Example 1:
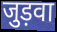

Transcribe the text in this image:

जुड़वा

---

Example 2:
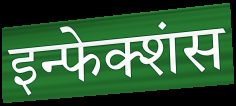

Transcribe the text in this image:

इन्फेक्शंस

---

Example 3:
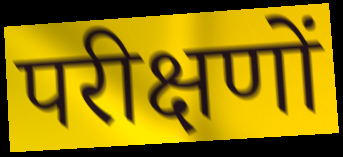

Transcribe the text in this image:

परीक्षणों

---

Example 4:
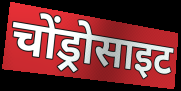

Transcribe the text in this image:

चोंड्रोसाइट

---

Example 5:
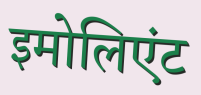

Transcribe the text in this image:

इमोलिएंट